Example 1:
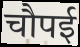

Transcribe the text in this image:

चौपई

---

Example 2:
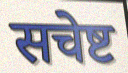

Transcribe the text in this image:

सचेष्ट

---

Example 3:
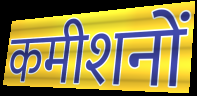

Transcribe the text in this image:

कमीशनों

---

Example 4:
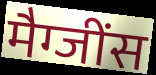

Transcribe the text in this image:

मैग्जींस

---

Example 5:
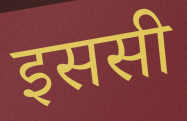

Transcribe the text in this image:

इससी